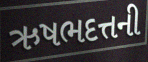
ઋષભદત્તની